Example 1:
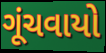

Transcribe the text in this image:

ગૂંચવાયો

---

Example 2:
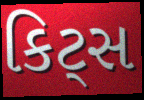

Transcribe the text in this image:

કિટ્સ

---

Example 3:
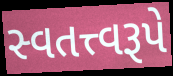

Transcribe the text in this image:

સ્વતત્ત્વરૂપે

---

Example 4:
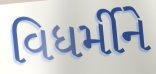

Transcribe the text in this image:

વિધર્મીને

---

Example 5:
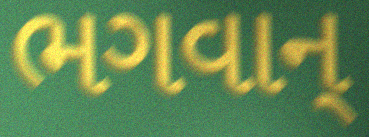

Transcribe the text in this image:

ભગવાન્